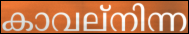
കാവല്നിന്ന